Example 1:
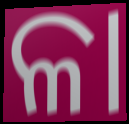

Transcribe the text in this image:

ଳା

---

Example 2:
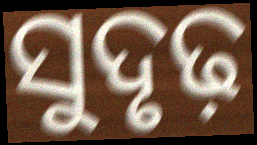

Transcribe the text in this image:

ସୁଦୃଢ଼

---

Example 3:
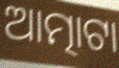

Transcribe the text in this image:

ଆତ୍ମାଟା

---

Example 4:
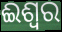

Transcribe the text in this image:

ଈଶ୍ୱର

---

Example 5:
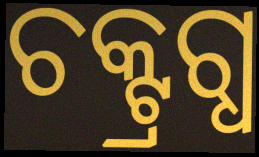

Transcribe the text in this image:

ଚକ୍ଟ୍ରଗ୍ଧ